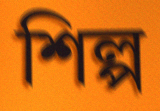
শিল্প